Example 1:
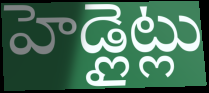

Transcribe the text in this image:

హెడ్లైట్లు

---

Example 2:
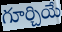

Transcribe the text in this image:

గూర్చియే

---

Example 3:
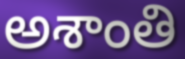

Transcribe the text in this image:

అశాంతి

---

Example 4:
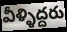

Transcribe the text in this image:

వీళ్ళిద్దరు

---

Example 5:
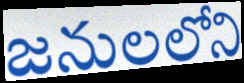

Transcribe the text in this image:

జనులలోని